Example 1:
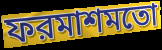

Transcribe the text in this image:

ফরমাশমতো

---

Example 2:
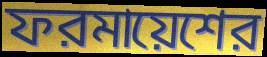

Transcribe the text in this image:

ফরমায়েশের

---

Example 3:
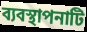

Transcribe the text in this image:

ব্যবস্থাপনাটি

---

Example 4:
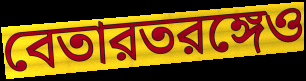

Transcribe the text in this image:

বেতারতরঙ্গেও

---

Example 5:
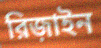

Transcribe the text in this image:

রিজ়াইন